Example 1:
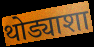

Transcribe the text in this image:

थोड्याशा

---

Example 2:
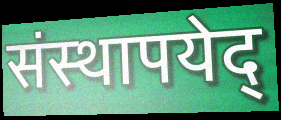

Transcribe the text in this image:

संस्थापयेद्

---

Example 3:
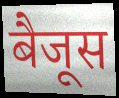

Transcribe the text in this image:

बैजूस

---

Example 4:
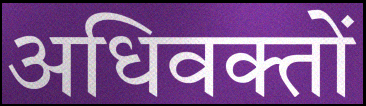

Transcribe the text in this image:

अधिवक्तों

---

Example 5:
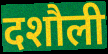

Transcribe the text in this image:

दशौली